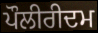
ਪੌਲੀਰੀਦਮ